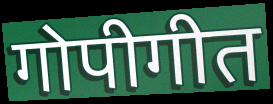
गोपीगीत